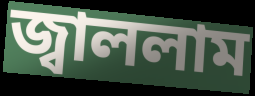
জ্বাললাম